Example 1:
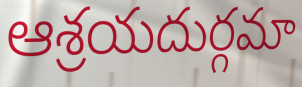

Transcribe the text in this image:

ఆశ్రయదుర్గమా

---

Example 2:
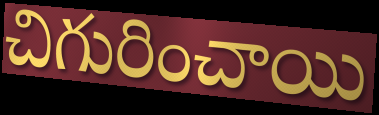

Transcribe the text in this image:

చిగురించాయి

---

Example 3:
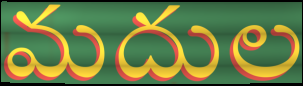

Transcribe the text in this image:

మదుల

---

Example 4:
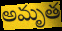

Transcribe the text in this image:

అమృత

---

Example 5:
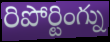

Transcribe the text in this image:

రిపోర్టింగ్ను